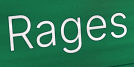
Rages